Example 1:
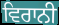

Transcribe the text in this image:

ਵਿਰਾਨੀ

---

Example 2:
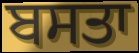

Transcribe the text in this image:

ਬਸਤਾ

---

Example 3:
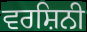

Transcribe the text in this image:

ਵਰਸ਼ਿਨੀ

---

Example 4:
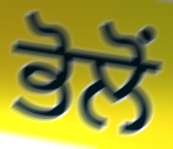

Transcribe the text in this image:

ਭੋਲੋਂ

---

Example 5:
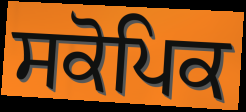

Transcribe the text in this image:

ਸਕੋਪਿਕ